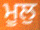
ਮੂਲੁ